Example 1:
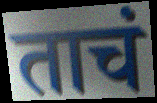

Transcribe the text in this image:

ताचं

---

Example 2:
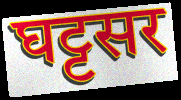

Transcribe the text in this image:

घट्टसर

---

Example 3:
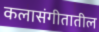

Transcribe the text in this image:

कलासंगीतातील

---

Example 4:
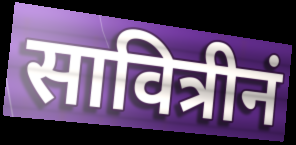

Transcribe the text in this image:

सावित्रीनं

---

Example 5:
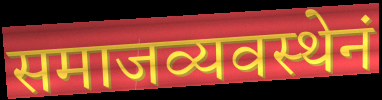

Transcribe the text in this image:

समाजव्यवस्थेनं